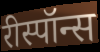
रीस्पॉन्स